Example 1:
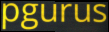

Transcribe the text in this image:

pgurus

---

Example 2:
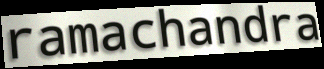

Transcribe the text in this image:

ramachandra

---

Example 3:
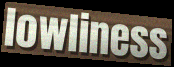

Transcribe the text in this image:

lowliness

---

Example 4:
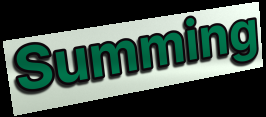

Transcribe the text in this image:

Summing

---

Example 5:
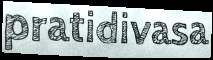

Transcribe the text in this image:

pratidivasa